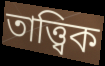
তাত্ত্বিক